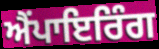
ਐਂਪਾਇਰਿੰਗ